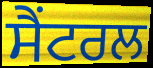
ਸੈਂਟਰਲ